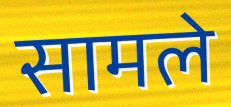
सामले